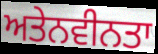
ਅਤੇਨਵੀਨਤਾ